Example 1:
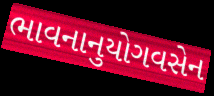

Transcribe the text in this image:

ભાવનાનુયોગવસેન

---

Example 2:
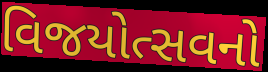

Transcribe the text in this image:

વિજયોત્સવનો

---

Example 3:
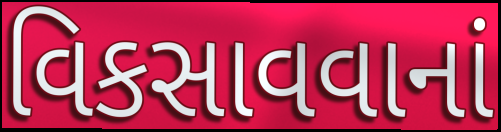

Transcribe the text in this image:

વિકસાવવાનાં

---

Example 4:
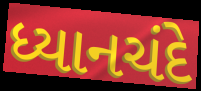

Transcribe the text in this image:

ધ્યાનચંદે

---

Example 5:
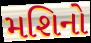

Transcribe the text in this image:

મશિનો